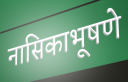
नासिकाभूषणे